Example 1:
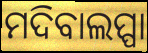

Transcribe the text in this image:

ମଦିବାଲପ୍ପା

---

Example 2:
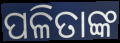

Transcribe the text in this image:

ପଳିତାଙ୍କ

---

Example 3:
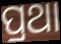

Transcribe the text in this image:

ପ୍ରଥା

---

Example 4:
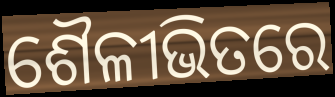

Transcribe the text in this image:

ଶୈଳୀଭିତରେ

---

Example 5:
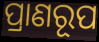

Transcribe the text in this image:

ପ୍ରାଣରୂପ